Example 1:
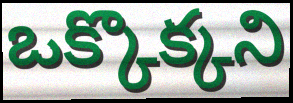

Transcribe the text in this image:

ఒక్కొక్కని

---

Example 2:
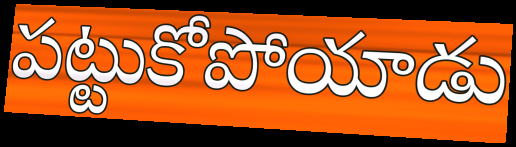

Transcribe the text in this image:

పట్టుకోపోయాడు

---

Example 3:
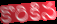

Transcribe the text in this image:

కొరికిన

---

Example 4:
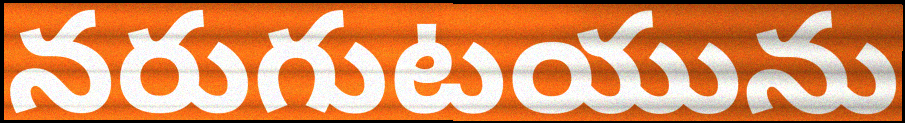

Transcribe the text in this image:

నరుగుటయును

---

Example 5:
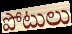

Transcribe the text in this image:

పోటులు